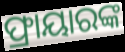
ଫ୍ରାୟାରଙ୍କ